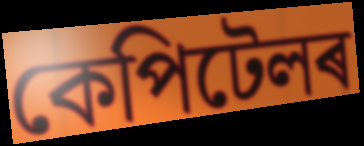
কেপিটেলৰ